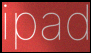
ipad